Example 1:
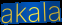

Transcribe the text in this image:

akala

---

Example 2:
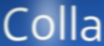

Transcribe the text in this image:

Colla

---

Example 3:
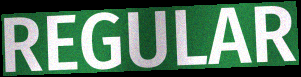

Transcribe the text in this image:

REGULAR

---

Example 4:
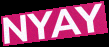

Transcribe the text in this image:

NYAY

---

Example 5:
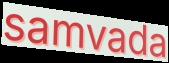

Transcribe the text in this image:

samvada